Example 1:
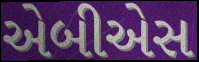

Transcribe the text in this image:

એબીએસ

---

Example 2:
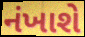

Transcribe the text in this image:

નંખાશે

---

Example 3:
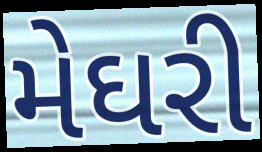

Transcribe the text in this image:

મેઘરી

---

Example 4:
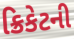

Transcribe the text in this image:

ક્રિકેટની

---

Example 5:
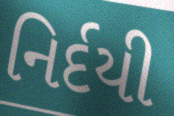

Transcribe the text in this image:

નિર્દયી